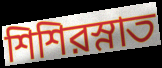
শিশিরস্নাত